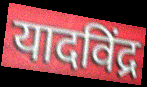
यादविंद्र